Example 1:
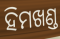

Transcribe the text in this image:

ହିମଖଣ୍ଡ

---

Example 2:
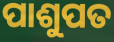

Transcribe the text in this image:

ପାଶୁପତ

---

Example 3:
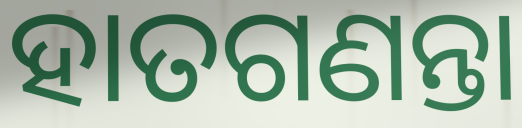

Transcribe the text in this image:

ହାତଗଣନ୍ତା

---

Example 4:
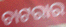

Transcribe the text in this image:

ଚାଟରାର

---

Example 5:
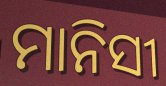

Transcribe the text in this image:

ମାନିସୀ